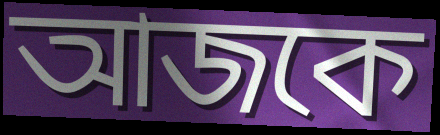
আজকে